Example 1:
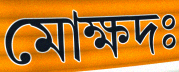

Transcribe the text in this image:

মোক্ষদঃ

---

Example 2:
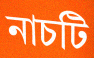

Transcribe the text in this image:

নাচটি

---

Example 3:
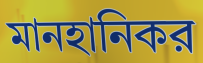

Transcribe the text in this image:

মানহানিকর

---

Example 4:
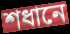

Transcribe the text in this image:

শধানে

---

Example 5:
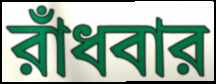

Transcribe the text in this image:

রাঁধবার